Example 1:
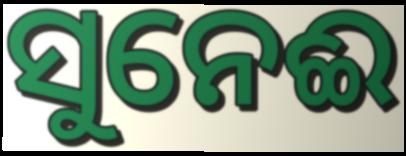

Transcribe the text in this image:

ସୁନେଈ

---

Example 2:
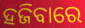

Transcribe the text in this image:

ହଜିବାରେ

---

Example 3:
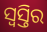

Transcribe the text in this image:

ସ୍ଵସ୍ତିର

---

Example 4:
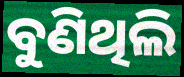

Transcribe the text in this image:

ବୁଣିଥିଲି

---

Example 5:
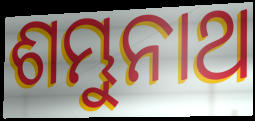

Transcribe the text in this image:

ଶମ୍ଭୁନାଥ